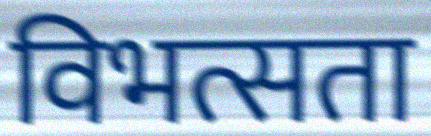
विभत्सता